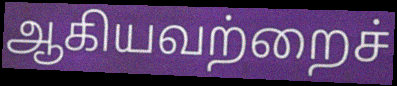
ஆகியவற்றைச்